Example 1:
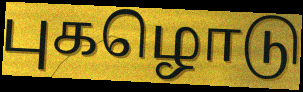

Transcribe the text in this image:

புகழொடு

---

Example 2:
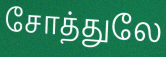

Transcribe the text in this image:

சோத்துலே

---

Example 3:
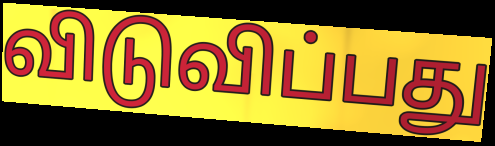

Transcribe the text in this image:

விடுவிப்பது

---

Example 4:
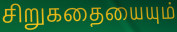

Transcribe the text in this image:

சிறுகதையையும்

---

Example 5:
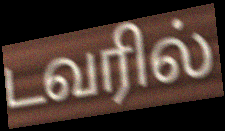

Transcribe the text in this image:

டவரில்